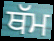
ਥੱਮ